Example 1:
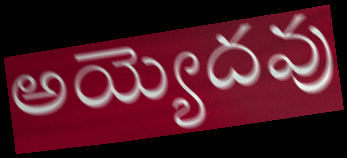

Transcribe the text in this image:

అయ్యెదవు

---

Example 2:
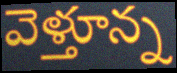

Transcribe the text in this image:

వెళ్తూన్న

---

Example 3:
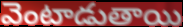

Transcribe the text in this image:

వెంటాడుతాయి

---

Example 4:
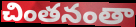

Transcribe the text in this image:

చింతనంతా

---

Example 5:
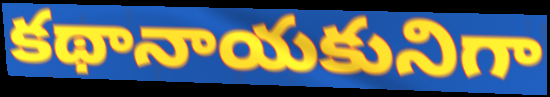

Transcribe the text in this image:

కథానాయకునిగా